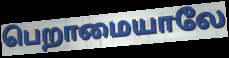
பெறாமையாலே